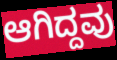
ಆಗಿದ್ದವು